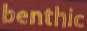
benthic